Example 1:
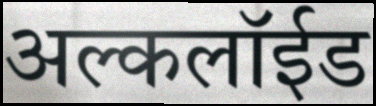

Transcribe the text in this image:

अल्कलॉईड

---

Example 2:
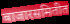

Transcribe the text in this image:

बाजारसमितीत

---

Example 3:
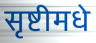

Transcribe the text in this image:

सृष्टीमधे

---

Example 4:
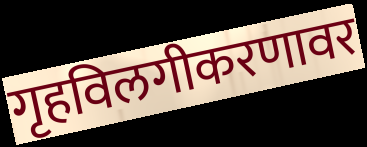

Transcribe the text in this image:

गृहविलगीकरणावर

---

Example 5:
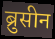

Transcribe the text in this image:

ब्रुसीन